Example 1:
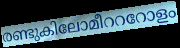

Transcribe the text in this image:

രണ്ടുകിലോമീറററോളം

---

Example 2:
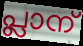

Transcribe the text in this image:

പ്ലാന്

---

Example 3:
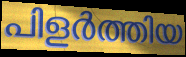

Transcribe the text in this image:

പിളർത്തിയ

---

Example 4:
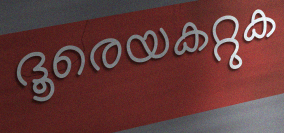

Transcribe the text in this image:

ദൂരെയകറ്റുക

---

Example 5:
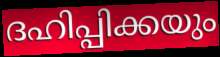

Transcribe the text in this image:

ദഹിപ്പിക്കയും